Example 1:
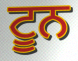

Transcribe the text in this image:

ਟੂਨ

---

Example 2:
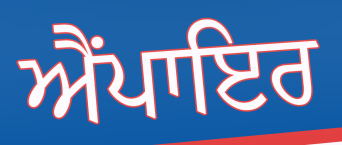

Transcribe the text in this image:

ਐੰਪਾਇਰ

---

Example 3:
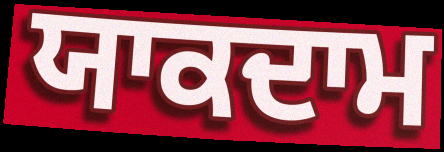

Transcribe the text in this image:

ਯਾਕਦਾਮ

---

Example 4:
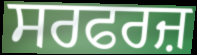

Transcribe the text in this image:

ਸਰਫਰਜ਼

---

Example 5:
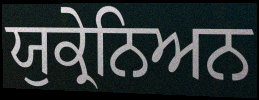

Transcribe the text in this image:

ਯੁਕ੍ਰੇਨਿਅਨ